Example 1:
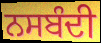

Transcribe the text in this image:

ਨਸਬੰਦੀ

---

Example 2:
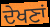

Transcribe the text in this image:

ਦੇਖਣਾਂ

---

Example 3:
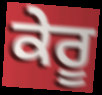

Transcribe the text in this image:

ਕੇਰੂ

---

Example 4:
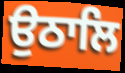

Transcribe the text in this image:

ਉਠਾਲਿ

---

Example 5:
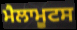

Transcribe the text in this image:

ਮੈਲਾਮੂਟਸ